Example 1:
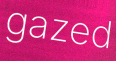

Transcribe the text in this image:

gazed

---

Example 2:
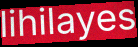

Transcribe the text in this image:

lihilayes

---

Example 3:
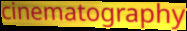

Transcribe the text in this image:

cinematography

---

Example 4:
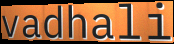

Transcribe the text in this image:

vadhali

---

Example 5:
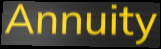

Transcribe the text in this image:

Annuity